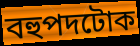
বহুপদটোক